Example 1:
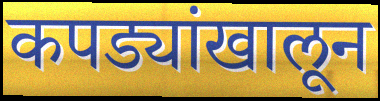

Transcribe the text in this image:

कपड्यांखालून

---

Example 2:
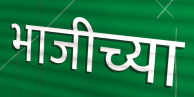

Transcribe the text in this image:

भाजीच्या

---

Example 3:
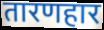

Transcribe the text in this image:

तारणहार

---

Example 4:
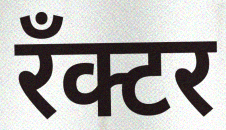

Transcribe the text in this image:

रँक्टर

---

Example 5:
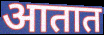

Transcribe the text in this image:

आतात